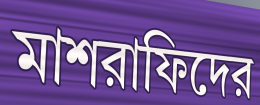
মাশরাফিদের